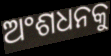
ଅଂଶଧନକୁ